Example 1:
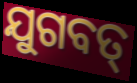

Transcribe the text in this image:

ଯୁଗବତ୍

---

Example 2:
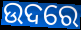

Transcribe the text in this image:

ଉଦରେ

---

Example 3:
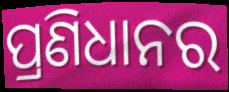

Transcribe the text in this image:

ପ୍ରଣିଧାନର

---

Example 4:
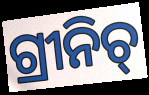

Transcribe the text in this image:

ଗ୍ରୀନିଚ୍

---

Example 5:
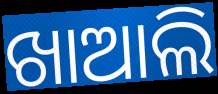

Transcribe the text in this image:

ଖାଆଲି